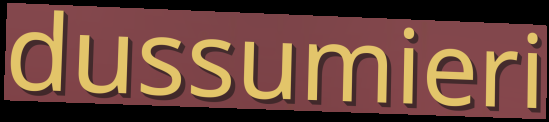
dussumieri